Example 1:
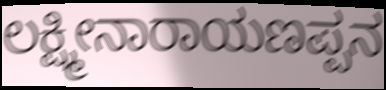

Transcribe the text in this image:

ಲಕ್ಷ್ಮೀನಾರಾಯಣಪ್ಪನ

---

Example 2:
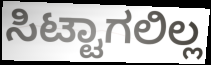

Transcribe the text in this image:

ಸಿಟ್ಟಾಗಲಿಲ್ಲ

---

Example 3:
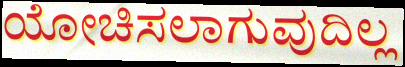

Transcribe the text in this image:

ಯೋಚಿಸಲಾಗುವುದಿಲ್ಲ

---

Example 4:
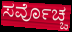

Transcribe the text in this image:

ಸರ್ವೊಚ್ಚ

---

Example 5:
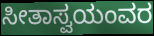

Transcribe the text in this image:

ಸೀತಾಸ್ವಯಂವರ